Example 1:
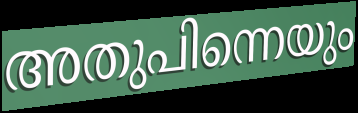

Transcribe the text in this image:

അതുപിന്നെയും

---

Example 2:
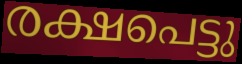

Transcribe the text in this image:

രക്ഷപെട്ടു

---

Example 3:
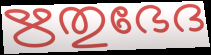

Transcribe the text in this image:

ഋതുഭേദ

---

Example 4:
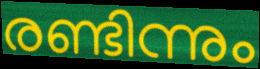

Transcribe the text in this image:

രണ്ടിന്നും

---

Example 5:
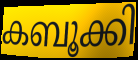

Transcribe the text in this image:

കബൂക്കി